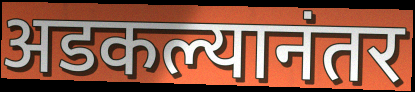
अडकल्यानंतर